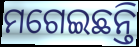
ମଗେଇଛନ୍ତି